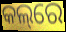
କଲ୍‌ରେ